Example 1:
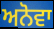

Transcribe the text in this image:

ਅਨੋਵਾ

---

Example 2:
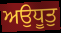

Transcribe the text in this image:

ਅਉਧੂਤੁ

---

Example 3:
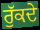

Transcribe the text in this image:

ਰੁੱਕਦੇ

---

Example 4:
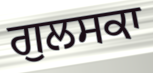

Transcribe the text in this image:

ਗੁਲਸਕਾ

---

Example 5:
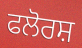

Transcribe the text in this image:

ਫਲੋਰਸ਼